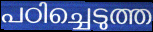
പഠിച്ചെടുത്ത